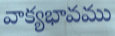
వాక్యభావము